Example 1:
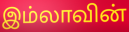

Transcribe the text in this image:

இம்லாவின்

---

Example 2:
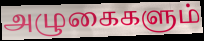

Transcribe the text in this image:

அழுகைகளும்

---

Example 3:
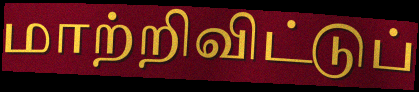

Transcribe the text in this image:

மாற்றிவிட்டுப்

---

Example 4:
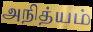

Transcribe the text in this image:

அநித்யம்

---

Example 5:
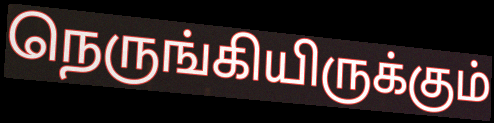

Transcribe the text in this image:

நெருங்கியிருக்கும்